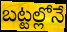
బట్టల్లోనే